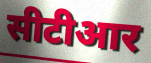
सीटीआर